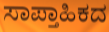
ಸಾಪ್ತಾಹಿಕದ